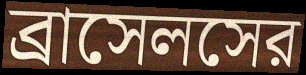
ব্রাসেলসের